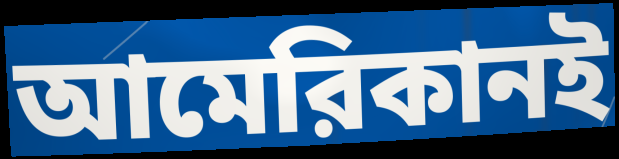
আমেরিকানই